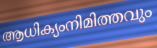
ആധിക്യംനിമിത്തവും